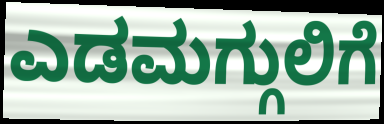
ಎಡಮಗ್ಗುಲಿಗೆ